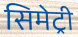
सिमेट्री